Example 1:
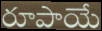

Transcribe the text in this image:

రూపాయే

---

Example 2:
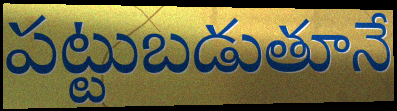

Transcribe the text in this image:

పట్టుబడుతూనే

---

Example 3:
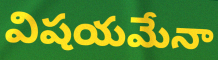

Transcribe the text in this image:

విషయమేనా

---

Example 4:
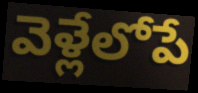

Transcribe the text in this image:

వెళ్లేలోపే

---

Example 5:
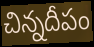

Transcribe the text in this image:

చిన్నదీపం